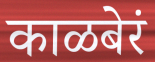
काळबेरं